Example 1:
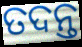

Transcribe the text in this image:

ତଦନ୍ତ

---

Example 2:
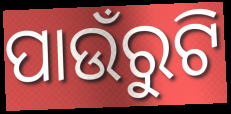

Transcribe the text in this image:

ପାଉଁରୁଟି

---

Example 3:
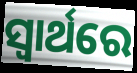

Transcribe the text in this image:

ସ୍ଵାର୍ଥରେ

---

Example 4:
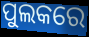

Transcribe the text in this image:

ପୁଲକରେ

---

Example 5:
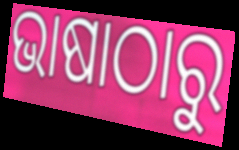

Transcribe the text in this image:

ଭାଷାଠାରୁ